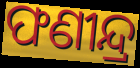
ଫଣୀନ୍ଦ୍ର